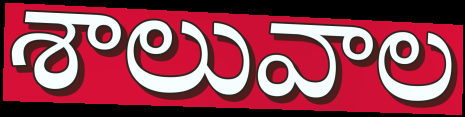
శాలువాల